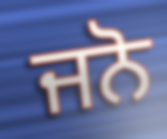
ਜਨੋ